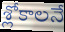
శ్లోకాలనే